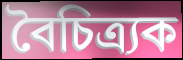
বৈচিত্ৰ্যক